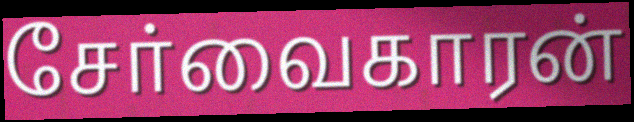
சேர்வைகாரன்